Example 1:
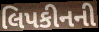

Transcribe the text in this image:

લિપકીનની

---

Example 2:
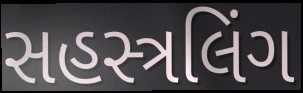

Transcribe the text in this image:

સહસ્ત્રલિંગ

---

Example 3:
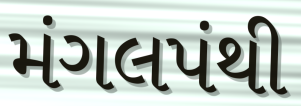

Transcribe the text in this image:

મંગલપંથી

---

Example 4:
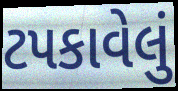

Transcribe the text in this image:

ટપકાવેલું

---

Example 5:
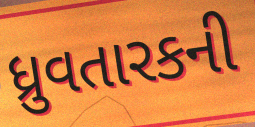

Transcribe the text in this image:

ધ્રુવતારકની